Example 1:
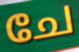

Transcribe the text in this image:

ചേ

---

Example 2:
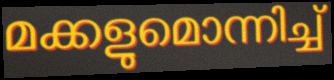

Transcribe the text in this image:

മക്കളുമൊന്നിച്ച്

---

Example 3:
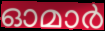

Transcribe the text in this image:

ഓമാർ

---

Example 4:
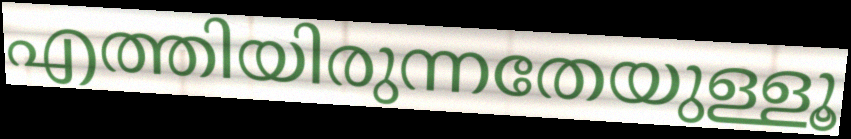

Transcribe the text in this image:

എത്തിയിരുന്നതേയുള്ളൂ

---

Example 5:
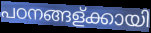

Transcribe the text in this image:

പഠനങ്ങള്ക്കായി